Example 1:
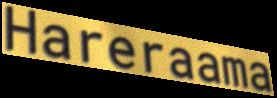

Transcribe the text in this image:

Hareraama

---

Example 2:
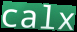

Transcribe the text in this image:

calx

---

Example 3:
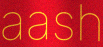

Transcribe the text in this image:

aash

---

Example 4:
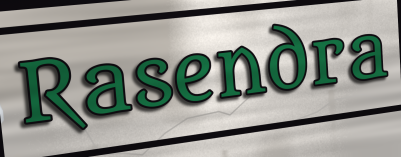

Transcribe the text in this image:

Rasendra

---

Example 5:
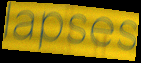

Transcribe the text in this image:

lapses